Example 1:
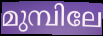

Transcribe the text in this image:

മുമ്പിലേ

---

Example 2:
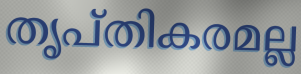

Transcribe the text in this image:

തൃപ്തികരമല്ല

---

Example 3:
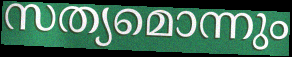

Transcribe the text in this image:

സത്യമൊന്നും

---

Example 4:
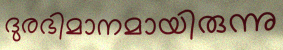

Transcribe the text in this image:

ദുരഭിമാനമായിരുന്നു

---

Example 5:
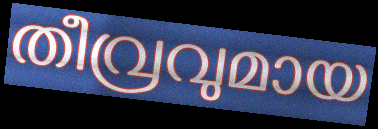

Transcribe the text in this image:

തീവ്രവുമായ